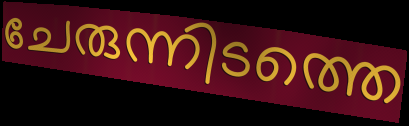
ചേരുന്നിടത്തെ